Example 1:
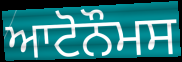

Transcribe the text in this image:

ਆਟੋਨੌਮਸ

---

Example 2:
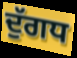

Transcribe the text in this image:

ਦੁੱਗਧ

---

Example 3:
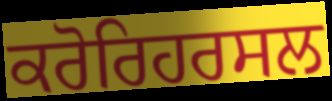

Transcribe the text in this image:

ਕਰੋਰਿਹਰਸਲ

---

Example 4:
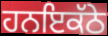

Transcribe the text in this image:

ਹਨਇਕੱਠੇ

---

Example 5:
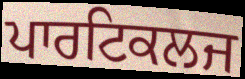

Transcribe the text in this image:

ਪਾਰਟਿਕਲਜ